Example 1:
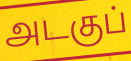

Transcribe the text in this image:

அடகுப்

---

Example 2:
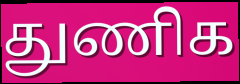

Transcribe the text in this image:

துணிக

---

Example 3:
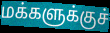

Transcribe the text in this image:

மக்களுக்குச்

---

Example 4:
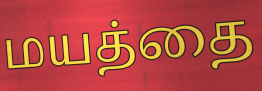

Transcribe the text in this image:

மயத்தை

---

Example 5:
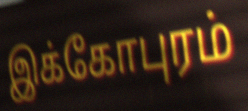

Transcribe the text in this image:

இக்கோபுரம்